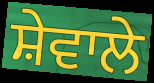
ਸ਼ੇਵਾਲੇ